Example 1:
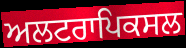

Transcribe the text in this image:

ਅਲਟਰਾਪਿਕਸਲ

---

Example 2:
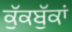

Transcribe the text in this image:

ਕੁੱਕਬੁੱਕਾਂ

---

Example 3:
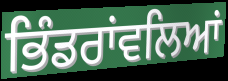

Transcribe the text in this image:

ਭਿੰਡਰਾਂਵਲਿਆਂ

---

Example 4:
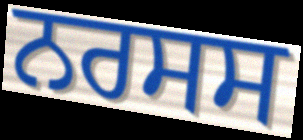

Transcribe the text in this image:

ਨਰਸਸ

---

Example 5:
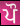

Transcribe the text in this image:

ਪੌ